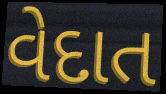
વેદાત